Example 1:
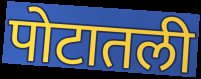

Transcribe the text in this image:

पोटातली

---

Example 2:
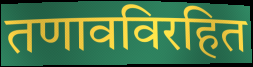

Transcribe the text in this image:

तणावविरहित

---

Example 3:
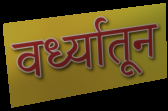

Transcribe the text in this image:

वर्ध्यातून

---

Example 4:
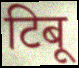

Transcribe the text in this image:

टिबू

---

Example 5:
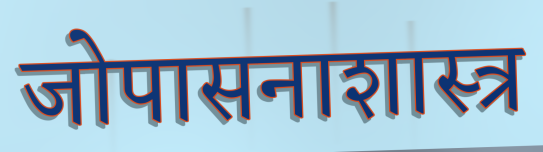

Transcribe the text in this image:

जोपासनाशास्त्र